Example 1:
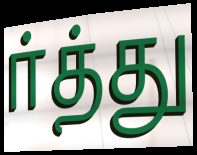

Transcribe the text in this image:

ர்த்து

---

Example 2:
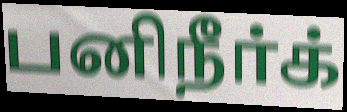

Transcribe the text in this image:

பனிநீர்க்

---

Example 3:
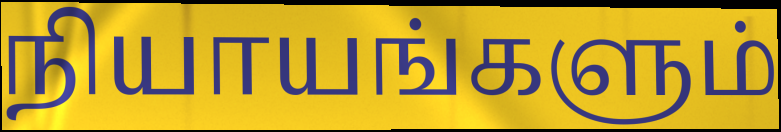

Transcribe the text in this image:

நியாயங்களும்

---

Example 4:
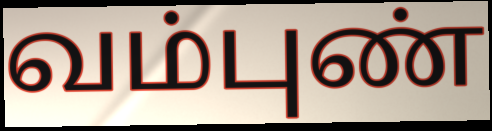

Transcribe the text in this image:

வம்புண்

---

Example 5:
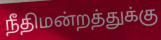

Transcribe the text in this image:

நீதிமன்றத்துக்கு